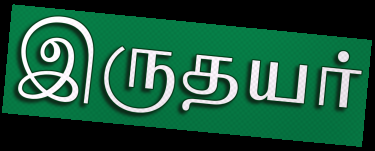
இருதயர்